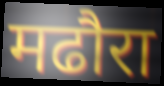
मढौरा